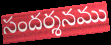
సందర్శనము